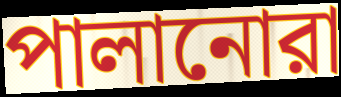
পালানোরা